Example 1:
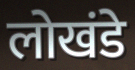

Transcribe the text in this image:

लोखंडे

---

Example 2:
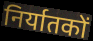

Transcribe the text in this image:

निर्यातकों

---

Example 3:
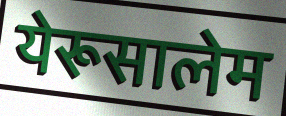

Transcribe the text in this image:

येरूसालेम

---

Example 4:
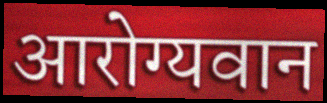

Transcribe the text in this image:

आरोग्यवान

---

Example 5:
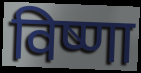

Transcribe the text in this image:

विष्णा